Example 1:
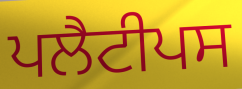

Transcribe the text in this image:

ਪਲੈਟੀਪਸ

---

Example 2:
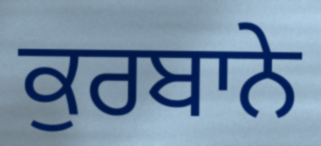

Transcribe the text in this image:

ਕੁਰਬਾਨੇ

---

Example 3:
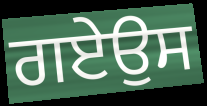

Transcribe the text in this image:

ਗਏਉਸ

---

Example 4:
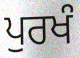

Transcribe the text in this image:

ਪੁਰਖੰ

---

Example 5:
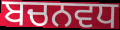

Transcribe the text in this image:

ਬਚਨਵਧ